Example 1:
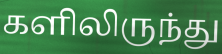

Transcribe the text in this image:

களிலிருந்து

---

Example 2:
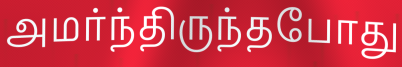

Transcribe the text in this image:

அமர்ந்திருந்தபோது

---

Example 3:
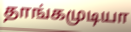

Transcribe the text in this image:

தாங்கமுடியா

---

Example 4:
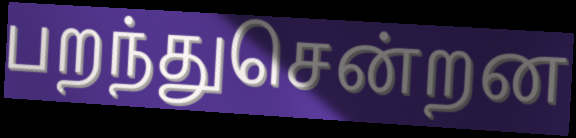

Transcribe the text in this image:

பறந்துசென்றன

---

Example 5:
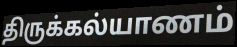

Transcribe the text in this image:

திருக்கல்யாணம்